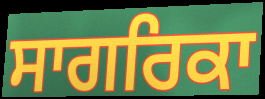
ਸਾਗਰਿਕਾ